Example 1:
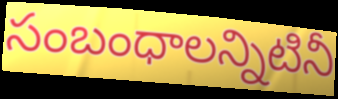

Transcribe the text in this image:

సంబంధాలన్నిటినీ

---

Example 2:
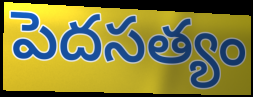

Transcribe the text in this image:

పెదసత్యం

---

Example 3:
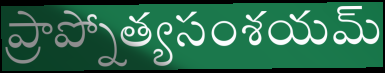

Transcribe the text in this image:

ప్రాప్నోత్యసంశయమ్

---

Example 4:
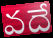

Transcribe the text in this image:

వదే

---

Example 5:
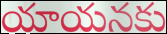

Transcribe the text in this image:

యాయనకు